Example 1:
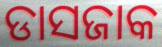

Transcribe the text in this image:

ଡାସଜାକ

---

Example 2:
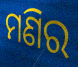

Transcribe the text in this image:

ମଣିର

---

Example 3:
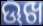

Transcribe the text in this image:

ଊଖ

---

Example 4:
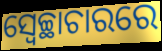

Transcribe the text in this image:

ସ୍ବେଚ୍ଛାଚାରରେ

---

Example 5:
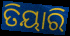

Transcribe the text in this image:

ତିୟାରି